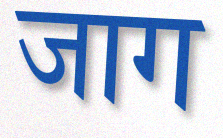
जाग